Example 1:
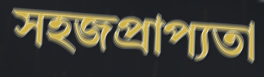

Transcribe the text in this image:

সহজপ্রাপ্যতা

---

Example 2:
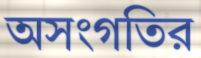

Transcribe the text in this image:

অসংগতির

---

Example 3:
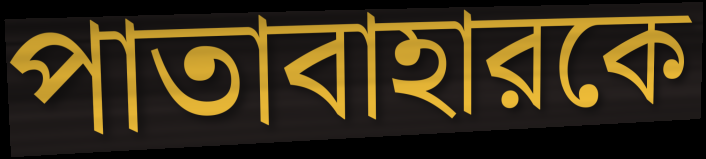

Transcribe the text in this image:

পাতাবাহারকে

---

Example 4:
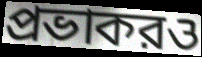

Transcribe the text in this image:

প্রভাকরও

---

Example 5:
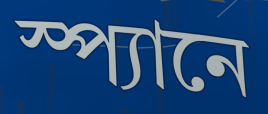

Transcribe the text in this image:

স্প্যানে